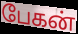
பேகன்